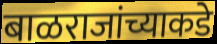
बाळराजांच्याकडे